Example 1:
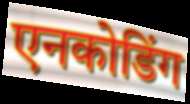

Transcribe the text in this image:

एनकोडिंग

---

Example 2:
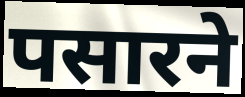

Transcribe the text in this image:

पसारने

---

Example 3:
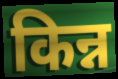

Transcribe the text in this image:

किन्न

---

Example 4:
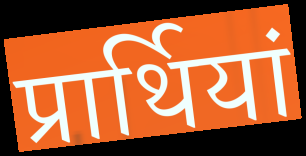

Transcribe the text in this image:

प्रार्थियां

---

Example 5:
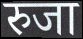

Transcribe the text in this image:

रुजा